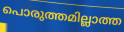
പൊരുത്തമില്ലാത്ത